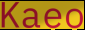
Kaeo